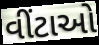
વીંટાઓ